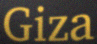
Giza